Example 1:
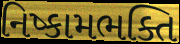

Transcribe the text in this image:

નિષ્કામભક્તિ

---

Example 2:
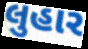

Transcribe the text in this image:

લુહાર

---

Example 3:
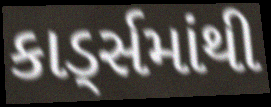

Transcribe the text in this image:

કાર્ડ્સમાંથી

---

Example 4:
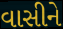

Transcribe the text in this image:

વાસીને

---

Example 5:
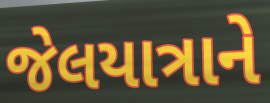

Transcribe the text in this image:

જેલયાત્રાને